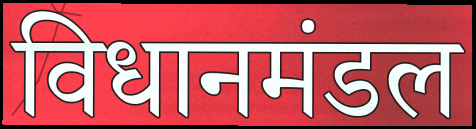
विधानमंडल